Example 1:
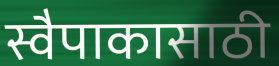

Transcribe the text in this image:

स्वैपाकासाठी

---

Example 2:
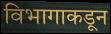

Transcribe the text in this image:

विभागाकडून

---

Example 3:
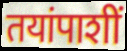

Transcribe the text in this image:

तयांपाशीं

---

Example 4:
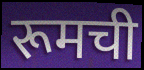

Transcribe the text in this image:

रूमची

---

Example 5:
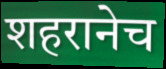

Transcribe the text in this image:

शहरानेच